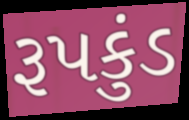
રૂપકુંડ